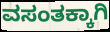
ವಸಂತಕ್ಕಾಗಿ